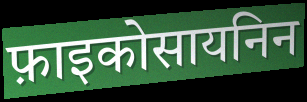
फ़ाइकोसायनिन